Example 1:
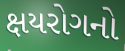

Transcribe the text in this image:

ક્ષયરોગનો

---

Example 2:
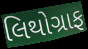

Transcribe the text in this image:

લિથોગ્રાફ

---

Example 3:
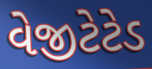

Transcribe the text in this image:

વેજીટેટેડ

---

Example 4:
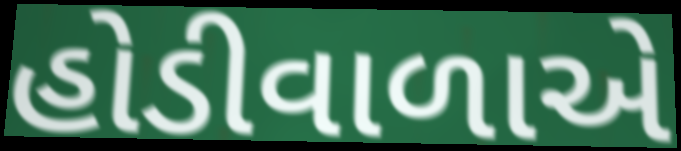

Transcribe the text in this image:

હોડીવાળાએ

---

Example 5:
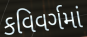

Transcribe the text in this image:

કવિવર્ગમાં